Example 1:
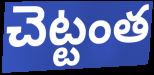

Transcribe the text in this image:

చెట్టంత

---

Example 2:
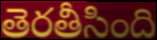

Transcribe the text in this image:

తెరతీసింది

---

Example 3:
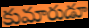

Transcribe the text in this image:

కుమారుడూ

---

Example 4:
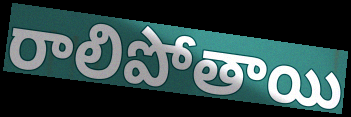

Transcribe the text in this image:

రాలిపోతాయి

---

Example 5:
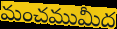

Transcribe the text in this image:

మంచముమీద